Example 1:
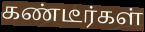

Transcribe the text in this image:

கண்டீர்கள்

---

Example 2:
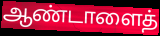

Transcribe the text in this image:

ஆண்டாளைத்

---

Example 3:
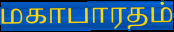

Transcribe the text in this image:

மகாபாரதம்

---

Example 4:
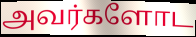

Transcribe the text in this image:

அவர்களோட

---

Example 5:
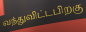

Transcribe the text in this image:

வந்துவிட்டபிறகு